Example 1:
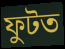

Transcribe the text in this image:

ফুটত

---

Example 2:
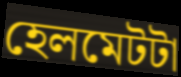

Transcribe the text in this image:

হেলমেটটা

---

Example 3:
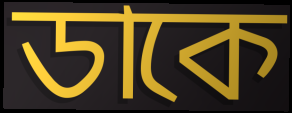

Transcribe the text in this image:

ডাকে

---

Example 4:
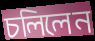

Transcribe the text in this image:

চলিলেন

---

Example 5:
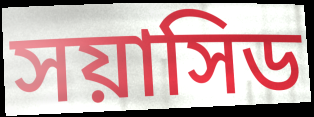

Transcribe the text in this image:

সয়াসিড